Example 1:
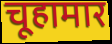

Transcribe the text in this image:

चूहामार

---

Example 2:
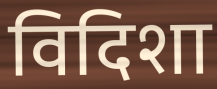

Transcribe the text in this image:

विदिशा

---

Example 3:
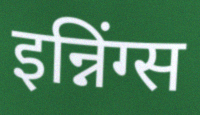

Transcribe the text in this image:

इन्निंग्स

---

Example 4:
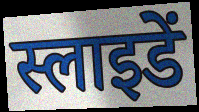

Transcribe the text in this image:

स्लाइडें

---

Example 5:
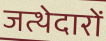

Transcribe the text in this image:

जत्थेदारों